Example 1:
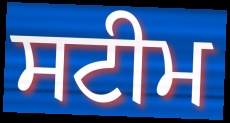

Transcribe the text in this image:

ਸਟੀਮ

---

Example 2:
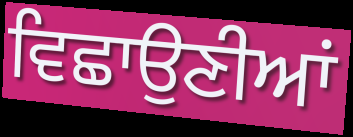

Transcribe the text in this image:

ਵਿਛਾਉਣੀਆਂ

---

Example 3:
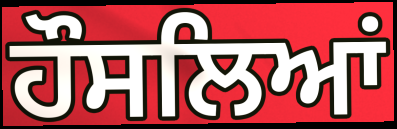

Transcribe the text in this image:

ਹੌਸਲਿਆਂ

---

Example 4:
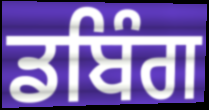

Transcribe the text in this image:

ਡਬਿੰਗ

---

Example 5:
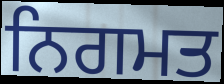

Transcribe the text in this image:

ਨਿਗਮਤ